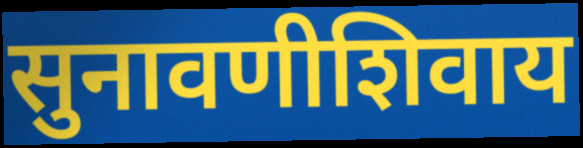
सुनावणीशिवाय